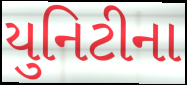
યુનિટીના